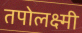
तपोलक्ष्मी